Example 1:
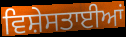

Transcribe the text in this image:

ਵਿਸ਼ੇਸਤਾਈਆਂ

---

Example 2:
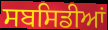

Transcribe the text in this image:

ਸਬਸਿਡੀਆਂ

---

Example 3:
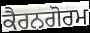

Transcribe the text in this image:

ਕੈਰਨਗੋਰਮ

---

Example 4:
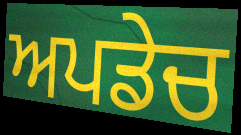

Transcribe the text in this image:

ਅਪਡੇਚ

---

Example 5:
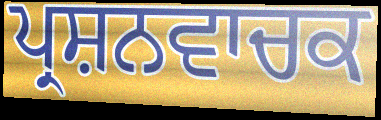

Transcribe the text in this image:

ਪ੍ਰਸ਼ਨਵਾਚਕ